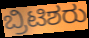
ಬ್ರಿಟಿಶರು